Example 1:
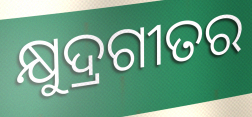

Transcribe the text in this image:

କ୍ଷୁଦ୍ରଗୀତର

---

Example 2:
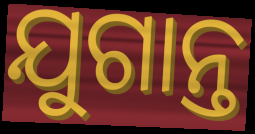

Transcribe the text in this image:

ଯୁଗାନ୍ତ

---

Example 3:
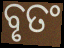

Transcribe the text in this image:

ବୃତଂ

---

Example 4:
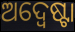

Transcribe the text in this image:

ଅଦ୍ୱେଷ୍ଟା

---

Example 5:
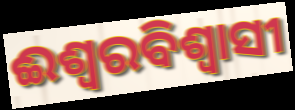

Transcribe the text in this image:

ଈଶ୍ବରବିଶ୍ବାସୀ